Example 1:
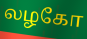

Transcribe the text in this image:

லழகோ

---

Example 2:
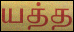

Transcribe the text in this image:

யத்த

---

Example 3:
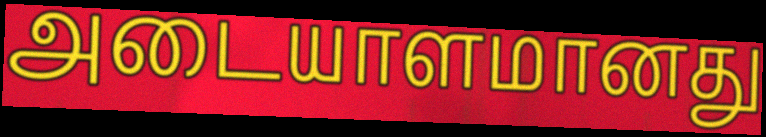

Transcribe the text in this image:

அடையாளமானது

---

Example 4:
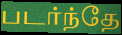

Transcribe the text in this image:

படர்ந்தே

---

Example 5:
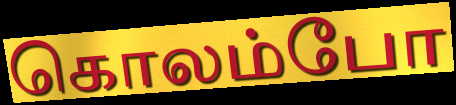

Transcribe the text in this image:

கொலம்போ